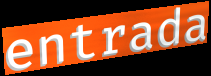
entrada